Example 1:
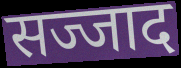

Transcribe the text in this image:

सज्जाद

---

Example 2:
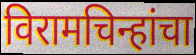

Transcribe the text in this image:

विरामचिन्हांचा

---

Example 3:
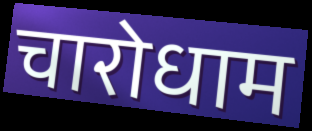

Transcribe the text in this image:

चारोधाम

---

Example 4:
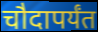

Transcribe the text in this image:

चौदापर्यंत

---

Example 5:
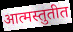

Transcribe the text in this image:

आत्मस्तुतीत